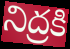
నిద్రకి